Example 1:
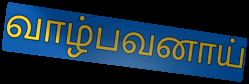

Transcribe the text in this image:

வாழ்பவனாய்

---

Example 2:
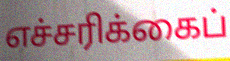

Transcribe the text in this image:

எச்சரிக்கைப்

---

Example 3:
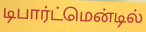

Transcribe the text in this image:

டிபார்ட்மென்டில்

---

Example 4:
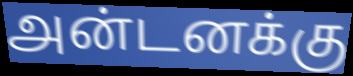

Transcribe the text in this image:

அன்டனக்கு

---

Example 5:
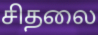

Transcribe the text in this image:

சிதலை